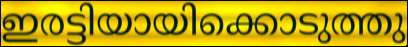
ഇരട്ടിയായിക്കൊടുത്തു